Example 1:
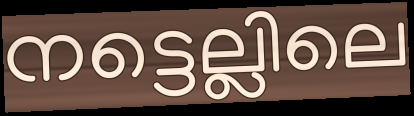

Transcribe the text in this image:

നട്ടെല്ലിലെ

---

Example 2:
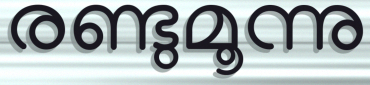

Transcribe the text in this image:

രണ്ടുമൂന്നു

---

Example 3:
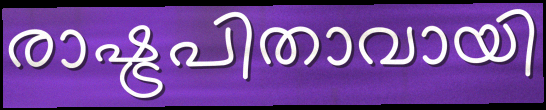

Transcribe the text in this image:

രാഷ്ട്രപിതാവായി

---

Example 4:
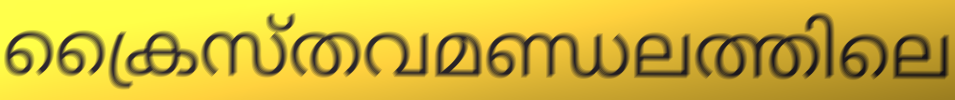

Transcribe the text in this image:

ക്രൈസ്തവമണ്ഡലത്തിലെ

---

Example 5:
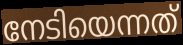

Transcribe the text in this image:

നേടിയെന്നത്